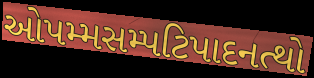
ઓપમ્મસમ્પટિપાદનત્થો